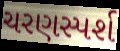
ચરણસ્પર્શ